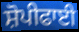
ਸ਼ੋਪੀਫਾਈ